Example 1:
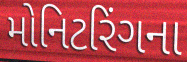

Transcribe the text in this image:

મોનિટરિંગના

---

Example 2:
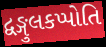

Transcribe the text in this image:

દ્વઙ્ગુલકપ્પોતિ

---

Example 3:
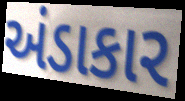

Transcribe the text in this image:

અંડાકાર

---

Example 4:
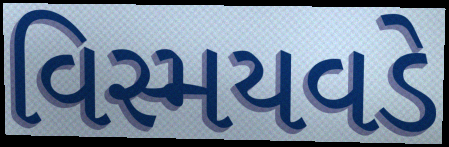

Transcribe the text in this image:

વિસ્મયવડે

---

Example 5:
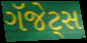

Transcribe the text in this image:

ગૅજેટ્સ